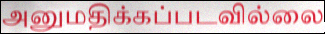
அனுமதிக்கப்படவில்லை